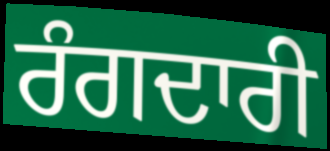
ਰੰਗਦਾਰੀ